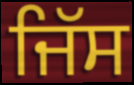
ਜਿੱਸ